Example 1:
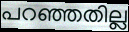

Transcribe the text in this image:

പറഞ്ഞതില്ല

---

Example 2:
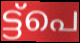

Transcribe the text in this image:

ട്ട്പെ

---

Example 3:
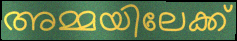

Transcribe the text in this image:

അമ്മയിലേക്ക്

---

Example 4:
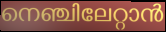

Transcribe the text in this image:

നെഞ്ചിലേറ്റാൻ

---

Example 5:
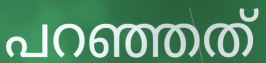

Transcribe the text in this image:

പറഞ്ഞത്